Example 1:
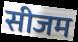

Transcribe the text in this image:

सीजम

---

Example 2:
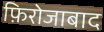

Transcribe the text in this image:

फ़िरोजाबाद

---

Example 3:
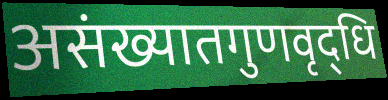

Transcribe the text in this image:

असंख्यातगुणवृद्धि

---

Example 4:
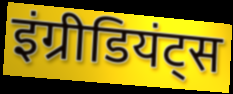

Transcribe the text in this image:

इंग्रीडियंट्स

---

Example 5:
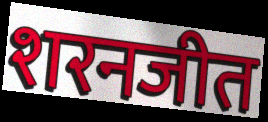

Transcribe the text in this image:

शरनजीत